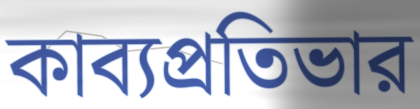
কাব্যপ্রতিভার